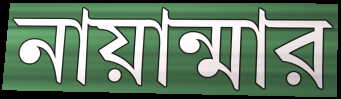
নায়ান্মার